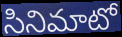
సినిమాటో